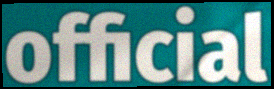
official